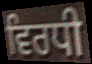
ਵਿਰਧੀ